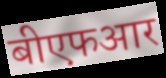
बीएफआर